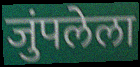
जुंपलेला